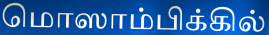
மொஸாம்பிக்கில்